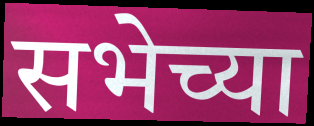
सभेच्या